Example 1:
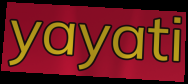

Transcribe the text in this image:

yayati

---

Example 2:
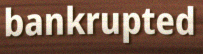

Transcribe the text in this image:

bankrupted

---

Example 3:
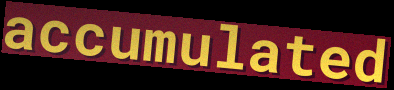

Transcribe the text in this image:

accumulated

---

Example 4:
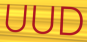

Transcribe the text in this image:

UUD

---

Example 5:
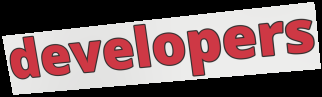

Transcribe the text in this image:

developers